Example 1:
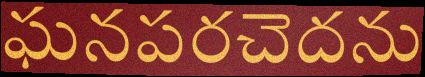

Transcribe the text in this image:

ఘనపరచెదను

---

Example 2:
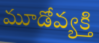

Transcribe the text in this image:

మూడోవ్యక్తి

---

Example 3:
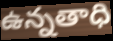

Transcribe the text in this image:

ఉన్నతాధి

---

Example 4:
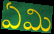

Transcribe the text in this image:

ఏమి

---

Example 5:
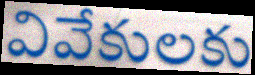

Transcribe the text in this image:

వివేకులకు